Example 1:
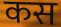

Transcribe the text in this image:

कस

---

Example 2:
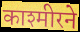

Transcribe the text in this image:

काश्मीरने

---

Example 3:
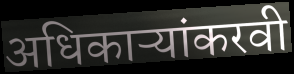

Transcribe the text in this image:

अधिकाऱ्यांकरवी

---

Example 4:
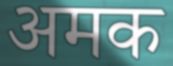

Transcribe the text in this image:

अमक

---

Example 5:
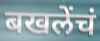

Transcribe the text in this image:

बखलेंचं